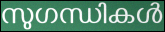
സുഗന്ധികൾ